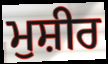
ਮੁਸ਼ੀਰ